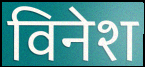
विनेश